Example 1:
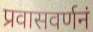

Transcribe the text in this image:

प्रवासवर्णनं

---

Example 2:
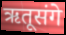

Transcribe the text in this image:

ऋतूसंगे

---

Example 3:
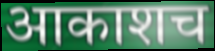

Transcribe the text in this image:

आकाशच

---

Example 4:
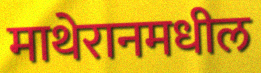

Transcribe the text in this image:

माथेरानमधील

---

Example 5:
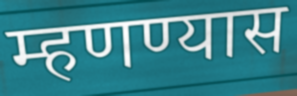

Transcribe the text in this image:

म्हणण्यास